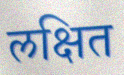
लक्षित